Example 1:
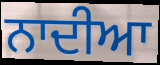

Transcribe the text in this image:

ਨਾਦੀਆ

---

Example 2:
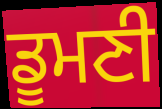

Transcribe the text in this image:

ਡੂਮਣੀ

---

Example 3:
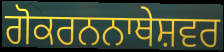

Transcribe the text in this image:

ਗੋਕਰਨਨਾਥੇਸ਼ਵਰ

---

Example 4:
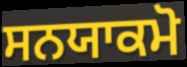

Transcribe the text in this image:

ਸਨਯਾਕਮੋ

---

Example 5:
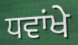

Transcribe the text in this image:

ਧਵਾਂਖੇ